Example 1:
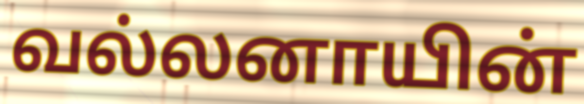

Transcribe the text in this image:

வல்லனாயின்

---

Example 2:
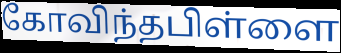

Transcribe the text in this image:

கோவிந்தபிள்ளை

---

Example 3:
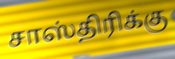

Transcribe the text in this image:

சாஸ்திரிக்கு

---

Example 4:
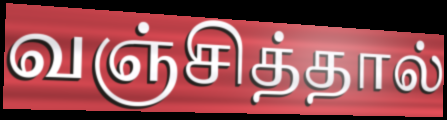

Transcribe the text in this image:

வஞ்சித்தால்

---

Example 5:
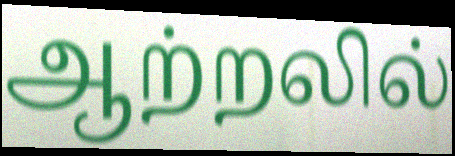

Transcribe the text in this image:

ஆற்றலில்